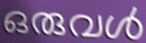
ഒരുവൾ